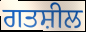
ਗਤਸ਼ੀਲ